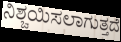
ನಿಶ್ಚಯಿಸಲಾಗುತ್ತದೆ